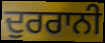
ਦੁਰਰਾਨੀ